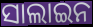
ସାଲାଇନ